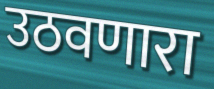
उठवणारा